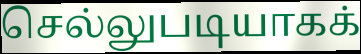
செல்லுபடியாகக்